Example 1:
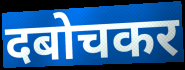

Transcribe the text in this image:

दबोचकर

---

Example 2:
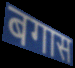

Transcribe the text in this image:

बगास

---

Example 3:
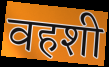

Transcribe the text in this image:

वहशी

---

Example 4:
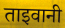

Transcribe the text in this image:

ताइवानी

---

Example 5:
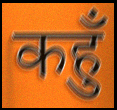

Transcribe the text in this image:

कहुँ